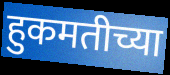
हुकमतीच्या